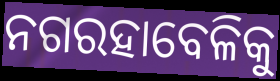
ନଗରହାବେଳିକୁ